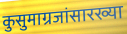
कुसुमाग्रजांसारख्या